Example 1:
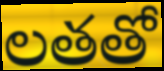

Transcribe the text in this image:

లతతో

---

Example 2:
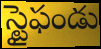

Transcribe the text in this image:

స్టైఫండు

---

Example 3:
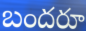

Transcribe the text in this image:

బందరూ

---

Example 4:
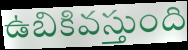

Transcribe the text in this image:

ఉబికివస్తుంది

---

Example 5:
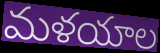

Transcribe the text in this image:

మళయాల